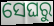
ସେଘରୁ